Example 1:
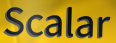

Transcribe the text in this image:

Scalar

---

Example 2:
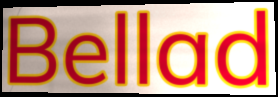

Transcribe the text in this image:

Bellad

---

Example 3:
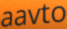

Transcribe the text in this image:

aavto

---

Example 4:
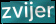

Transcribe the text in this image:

zvijer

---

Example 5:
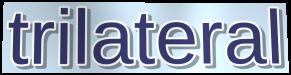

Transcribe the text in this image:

trilateral